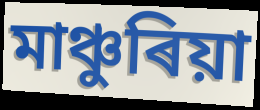
মাঞ্চুৰিয়া